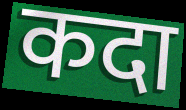
कदा